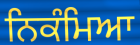
ਨਿਕੰਮਿਆ